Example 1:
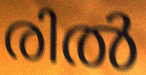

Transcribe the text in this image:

രിൽ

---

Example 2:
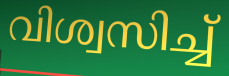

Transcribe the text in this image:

വിശ്വസിച്ച്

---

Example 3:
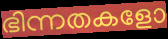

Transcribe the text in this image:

ഭിന്നതകളോ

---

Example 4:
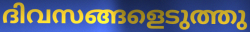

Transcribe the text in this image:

ദിവസങ്ങളെടുത്തു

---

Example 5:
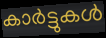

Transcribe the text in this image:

കാർട്ടുകൾ